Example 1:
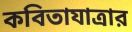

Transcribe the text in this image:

কবিতাযাত্রার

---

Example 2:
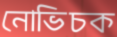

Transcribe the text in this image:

নোভিচক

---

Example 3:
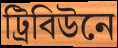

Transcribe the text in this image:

ট্রিবিউনে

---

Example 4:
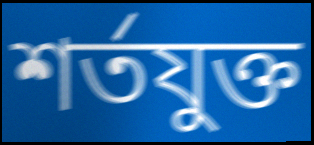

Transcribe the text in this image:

শর্তযুক্ত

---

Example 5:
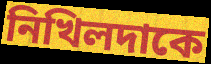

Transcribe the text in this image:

নিখিলদাকে